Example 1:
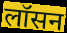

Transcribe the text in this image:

लॉसन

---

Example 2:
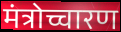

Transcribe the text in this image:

मंत्रोच्चारण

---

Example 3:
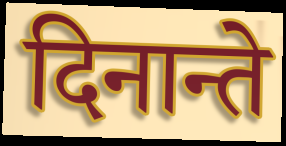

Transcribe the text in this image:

दिनान्ते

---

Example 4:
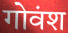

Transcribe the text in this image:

गोवंश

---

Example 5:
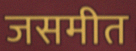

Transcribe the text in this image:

जसमीत